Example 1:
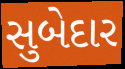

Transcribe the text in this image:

સુબેદાર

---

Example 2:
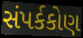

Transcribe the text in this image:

સંપર્કકોણ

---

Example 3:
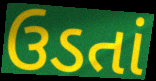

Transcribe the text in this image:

ઉડતાં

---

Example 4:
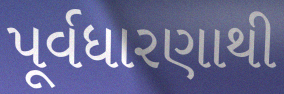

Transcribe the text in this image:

પૂર્વધારણાથી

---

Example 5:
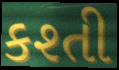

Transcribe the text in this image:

કશ્તી